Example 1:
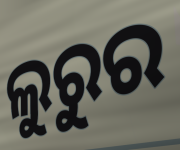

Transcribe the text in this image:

ଲୁରୁର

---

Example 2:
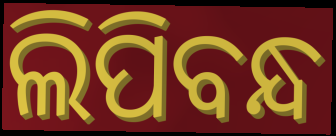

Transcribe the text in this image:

ଲିପିବନ୍ଧ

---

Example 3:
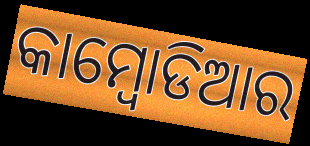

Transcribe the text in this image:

କାମ୍ବୋଡିଆର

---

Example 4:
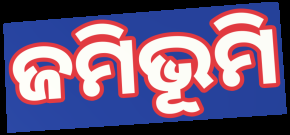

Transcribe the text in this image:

ଜମିଭୂମି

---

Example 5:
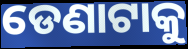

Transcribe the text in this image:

ଡେଣାଟାକୁ